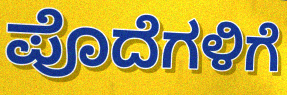
ಪೊದೆಗಳಿಗೆ